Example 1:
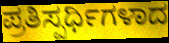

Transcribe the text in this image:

ಪ್ರತಿಸ್ಪರ್ಧಿಗಳಾದ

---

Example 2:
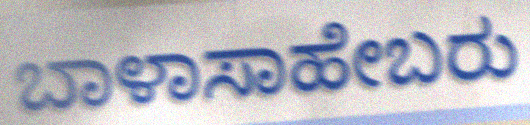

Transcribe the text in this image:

ಬಾಳಾಸಾಹೇಬರು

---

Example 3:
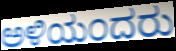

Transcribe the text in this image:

ಅಳಿಯಂದರು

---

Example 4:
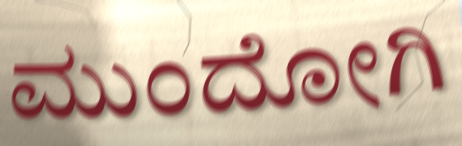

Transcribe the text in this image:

ಮುಂದೋಗಿ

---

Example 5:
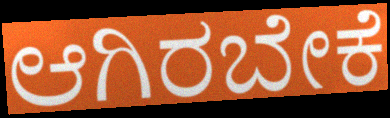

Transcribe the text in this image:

ಆಗಿರಬೇಕೆ